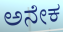
ಅನೇಕ